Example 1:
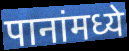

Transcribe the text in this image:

पानांमध्ये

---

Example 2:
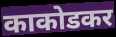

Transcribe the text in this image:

काकोडकर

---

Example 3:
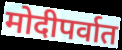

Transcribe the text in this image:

मोदीपर्वात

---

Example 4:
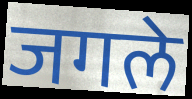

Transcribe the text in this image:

जगले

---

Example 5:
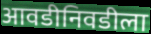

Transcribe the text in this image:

आवडीनिवडीला